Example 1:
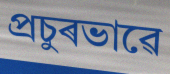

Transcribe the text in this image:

প্ৰচুৰভাৱে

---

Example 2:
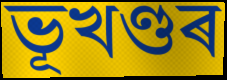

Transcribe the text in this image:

ভূখণ্ডৰ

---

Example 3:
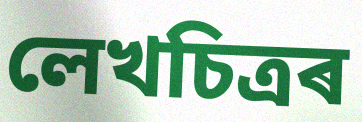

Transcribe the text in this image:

লেখচিত্ৰৰ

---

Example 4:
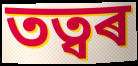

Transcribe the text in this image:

তত্বৰ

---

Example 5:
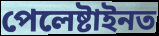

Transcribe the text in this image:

পেলেষ্টাইনত